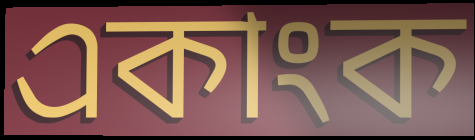
একাংক